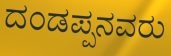
ದಂಡಪ್ಪನವರು